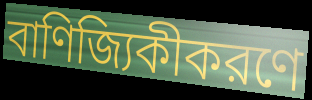
বাণিজ্যিকীকরণে